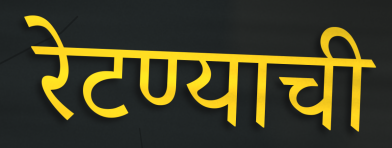
रेटण्याची